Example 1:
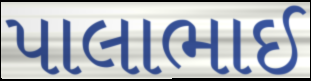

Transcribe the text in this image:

પાલાભાઈ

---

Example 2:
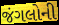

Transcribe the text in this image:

જંગલોની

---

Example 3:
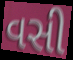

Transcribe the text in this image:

વસી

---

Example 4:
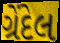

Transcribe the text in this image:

ગ્રેંદેલ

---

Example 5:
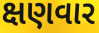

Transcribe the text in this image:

ક્ષણવાર